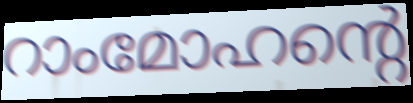
റാംമോഹന്റെ